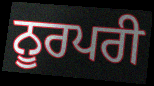
ਨੂਰਪਰੀ